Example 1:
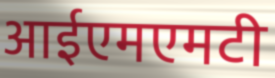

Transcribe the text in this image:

आईएमएमटी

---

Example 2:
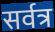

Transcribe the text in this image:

सर्वत्र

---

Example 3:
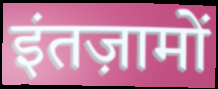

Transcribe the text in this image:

इंतज़ामों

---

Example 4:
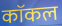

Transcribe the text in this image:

कॉकल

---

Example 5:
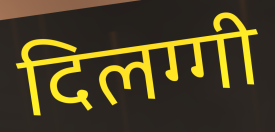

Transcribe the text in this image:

दिलग्गी